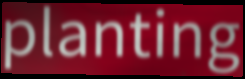
planting